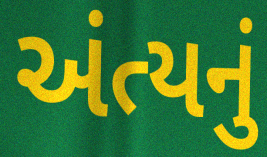
અંત્યનું